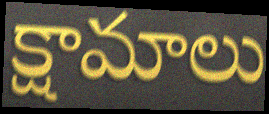
క్షామాలు